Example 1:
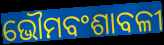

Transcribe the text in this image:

ଭୌମବଂଶାବଳୀ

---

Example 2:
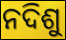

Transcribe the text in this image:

ନଦିଶୁ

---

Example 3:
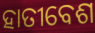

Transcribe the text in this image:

ହାତୀବେଶ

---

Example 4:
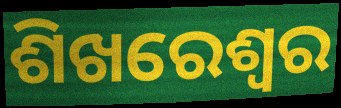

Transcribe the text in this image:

ଶିଖରେଶ୍ୱର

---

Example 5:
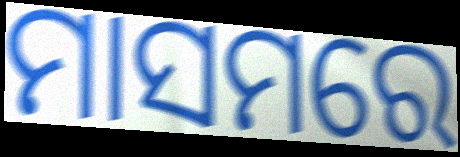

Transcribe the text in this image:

ମାସମରେ